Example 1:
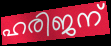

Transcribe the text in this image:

ഹരിജന്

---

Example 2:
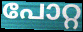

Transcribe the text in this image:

പോറ്റ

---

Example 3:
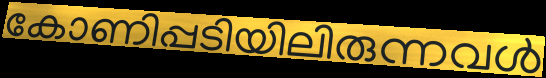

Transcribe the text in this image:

കോണിപ്പടിയിലിരുന്നവൾ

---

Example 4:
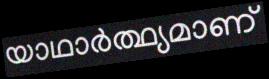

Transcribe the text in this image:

യാഥാർത്ഥ്യമാണ്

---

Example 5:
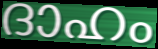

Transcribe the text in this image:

ദാഹം